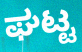
ಘಟ್ಟ